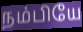
நம்பியே